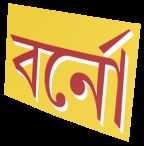
বর্নো